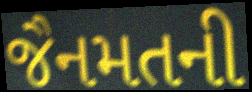
જૈનમતની